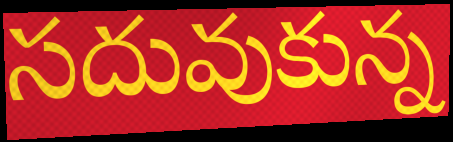
సదువుకున్న